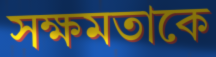
সক্ষমতাকে